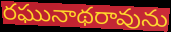
రఘునాథరావును